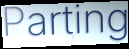
Parting